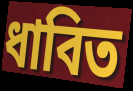
ধাবিত